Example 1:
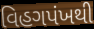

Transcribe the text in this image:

વિહગપંખથી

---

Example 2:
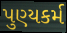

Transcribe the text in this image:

પુણ્યકર્મ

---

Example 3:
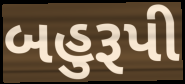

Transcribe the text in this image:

બહુરૂપી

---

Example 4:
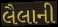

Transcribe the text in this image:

લૈલાની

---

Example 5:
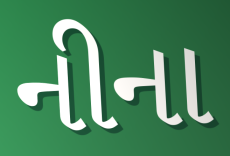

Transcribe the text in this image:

નીના